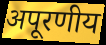
अपूरणीय